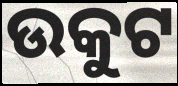
ଉକୁଟ